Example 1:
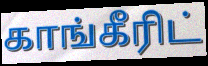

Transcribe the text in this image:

காங்கீரிட்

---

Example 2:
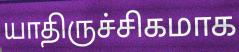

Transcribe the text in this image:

யாதிருச்சிகமாக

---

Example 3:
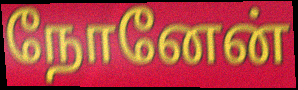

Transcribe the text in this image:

நோனேன்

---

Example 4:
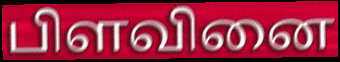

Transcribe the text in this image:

பிளவினை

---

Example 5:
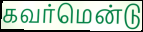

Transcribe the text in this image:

கவர்மென்டு